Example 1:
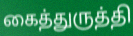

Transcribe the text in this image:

கைத்துருத்தி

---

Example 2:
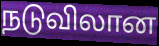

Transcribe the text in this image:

நடுவிலான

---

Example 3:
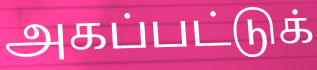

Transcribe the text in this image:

அகப்பட்டுக்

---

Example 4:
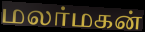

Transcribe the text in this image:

மலர்மகன்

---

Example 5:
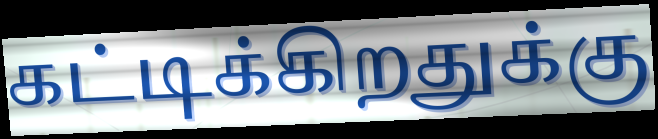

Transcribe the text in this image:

கட்டிக்கிறதுக்கு